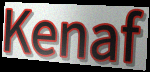
Kenaf